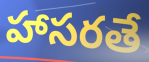
హాసరతే